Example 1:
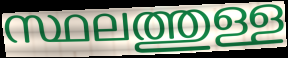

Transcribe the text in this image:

സ്ഥലത്തുള്ള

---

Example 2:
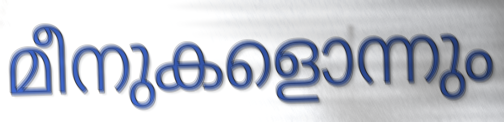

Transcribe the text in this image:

മീനുകളൊന്നും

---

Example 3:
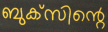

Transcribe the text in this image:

ബുക്‌സിന്റെ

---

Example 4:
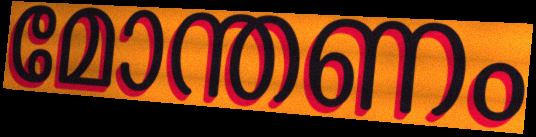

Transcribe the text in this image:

മോന്തണം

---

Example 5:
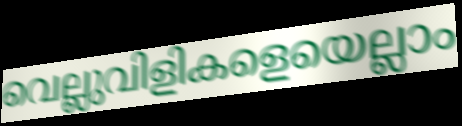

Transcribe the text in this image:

വെല്ലുവിളികളെയെല്ലാം